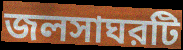
জলসাঘরটি